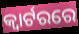
କ୍ଵାର୍ଟରରେ